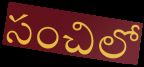
సంచిలో